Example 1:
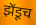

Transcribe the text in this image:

झेंडूच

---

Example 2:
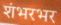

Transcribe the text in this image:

शंभरभर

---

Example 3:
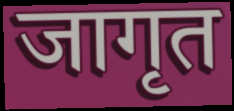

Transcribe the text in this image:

जागृत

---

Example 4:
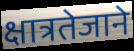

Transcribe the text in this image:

क्षात्रतेजाने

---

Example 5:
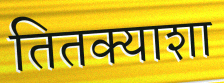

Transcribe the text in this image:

तितक्याशा